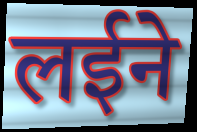
लईने